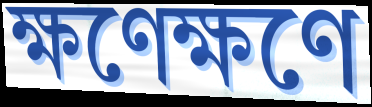
ক্ষণেক্ষণে